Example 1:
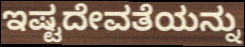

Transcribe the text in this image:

ಇಷ್ಟದೇವತೆಯನ್ನು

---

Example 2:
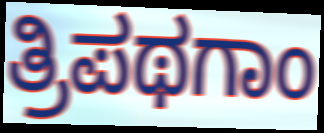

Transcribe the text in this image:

ತ್ರಿಪಥಗಾಂ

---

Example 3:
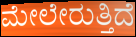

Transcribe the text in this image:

ಮೇಲೇರುತ್ತಿದೆ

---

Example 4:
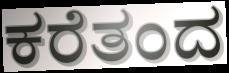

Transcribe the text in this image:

ಕರೆತಂದ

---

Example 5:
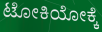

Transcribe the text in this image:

ಟೋಕಿಯೋಕ್ಕೆ